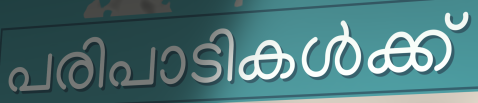
പരിപാടികൾക്ക്